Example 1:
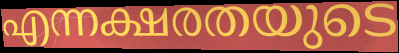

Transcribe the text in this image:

എന്നക്ഷരതയുടെ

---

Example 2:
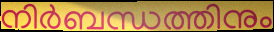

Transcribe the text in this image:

നിർബന്ധത്തിനും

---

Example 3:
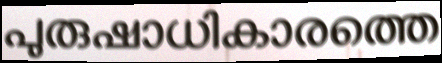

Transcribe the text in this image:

പുരുഷാധികാരത്തെ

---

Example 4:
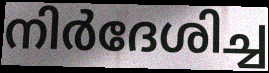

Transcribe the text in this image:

നിർദേശിച്ച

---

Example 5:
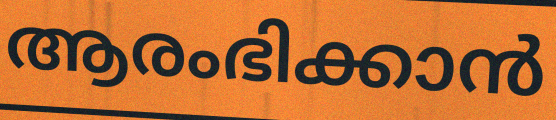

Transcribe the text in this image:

ആരംഭിക്കാൻ